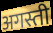
अगस्ती